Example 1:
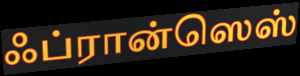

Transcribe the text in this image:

ஃப்ரான்ஸெஸ்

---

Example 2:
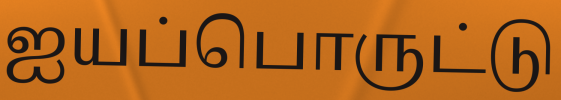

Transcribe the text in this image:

ஐயப்பொருட்டு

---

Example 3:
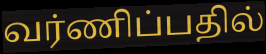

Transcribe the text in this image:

வர்ணிப்பதில்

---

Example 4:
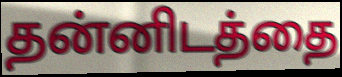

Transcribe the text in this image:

தன்னிடத்தை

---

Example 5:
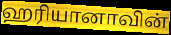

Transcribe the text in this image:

ஹரியானாவின்